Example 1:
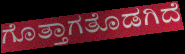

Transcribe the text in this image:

ಗೊತ್ತಾಗತೊಡಗಿದೆ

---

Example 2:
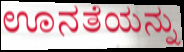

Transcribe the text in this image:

ಊನತೆಯನ್ನು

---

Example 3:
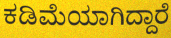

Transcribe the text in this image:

ಕಡಿಮೆಯಾಗಿದ್ದಾರೆ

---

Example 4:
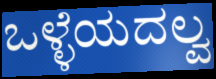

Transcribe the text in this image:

ಒಳ್ಳೆಯದಲ್ವ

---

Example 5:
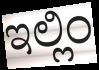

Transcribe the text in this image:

ಇಲ್ಲಿಂ